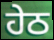
ਹੇਠ